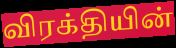
விரக்தியின்